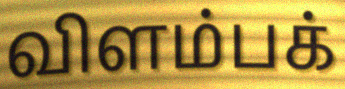
விளம்பக்